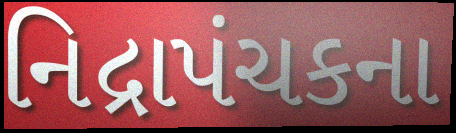
નિદ્રાપંચકના